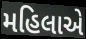
મહિલાએ